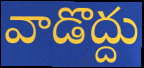
వాడొద్దు